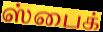
ஸ்பைக்